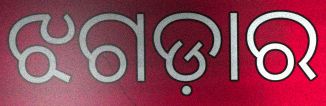
ଝଗଡ଼ାର